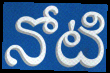
నోటి